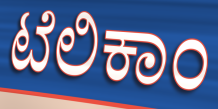
ಟೆಲಿಕಾಂ